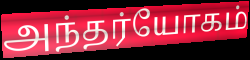
அந்தர்யோகம்